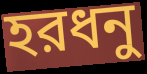
হরধনু